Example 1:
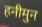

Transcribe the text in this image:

हनीमुन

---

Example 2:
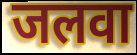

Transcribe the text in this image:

जलवा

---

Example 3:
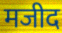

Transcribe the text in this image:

मजीद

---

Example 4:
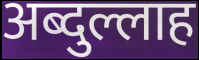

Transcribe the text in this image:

अब्दुल्लाह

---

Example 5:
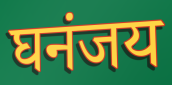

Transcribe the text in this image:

घनंजय